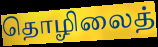
தொழிலைத்